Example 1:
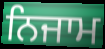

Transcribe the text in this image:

ਨਿਜਾਮ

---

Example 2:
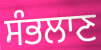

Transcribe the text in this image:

ਸੰਭਲਾਣ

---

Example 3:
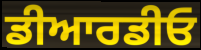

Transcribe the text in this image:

ਡੀਆਰਡੀਓ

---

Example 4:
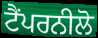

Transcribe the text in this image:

ਟੈਂਪਰਨੀਲੋ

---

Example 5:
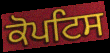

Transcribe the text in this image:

ਕੋਪਟਿਸ